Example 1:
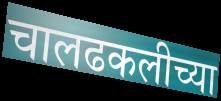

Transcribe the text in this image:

चालढकलीच्या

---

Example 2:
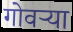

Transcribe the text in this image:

गोवर्‍या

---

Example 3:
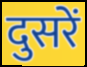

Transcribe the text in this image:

दुसरें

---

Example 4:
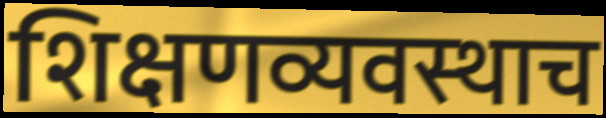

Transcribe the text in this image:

शिक्षणव्यवस्थाच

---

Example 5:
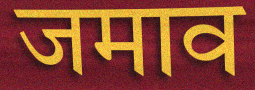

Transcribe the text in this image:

जमाव